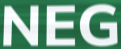
NEG